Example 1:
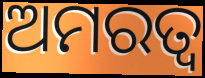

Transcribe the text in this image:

ଅମରତ୍ବ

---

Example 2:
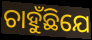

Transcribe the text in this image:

ଚାହୁଁଛିଯେ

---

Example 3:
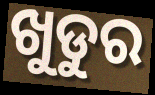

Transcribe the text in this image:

ଖୁଡୁର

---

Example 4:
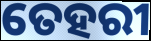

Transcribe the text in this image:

ତେହରୀ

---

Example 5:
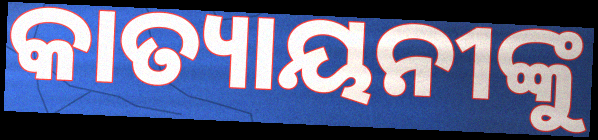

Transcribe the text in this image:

କାତ୍ୟାୟନୀଙ୍କୁ